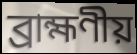
ব্রাহ্মণীয়